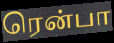
ரென்பா